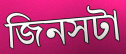
জিনসটা